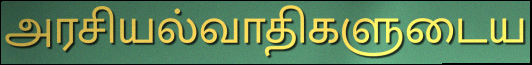
அரசியல்வாதிகளுடைய